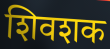
शिवशक